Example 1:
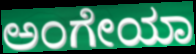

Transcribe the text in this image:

ಅಂಗೇಯಾ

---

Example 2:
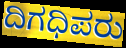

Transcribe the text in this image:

ದಿಗಧಿಪರು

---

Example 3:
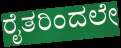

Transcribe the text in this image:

ರೈತರಿಂದಲೇ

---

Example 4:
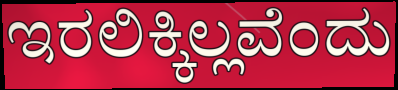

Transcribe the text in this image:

ಇರಲಿಕ್ಕಿಲ್ಲವೆಂದು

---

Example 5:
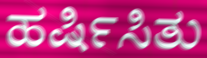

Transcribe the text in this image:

ಹರ್ಷಿಸಿತು